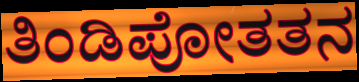
ತಿಂಡಿಪೋತತನ